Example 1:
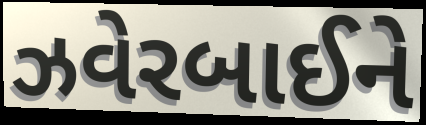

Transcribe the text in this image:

ઝવેરબાઈને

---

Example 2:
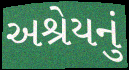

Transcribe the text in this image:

અશ્રેયનું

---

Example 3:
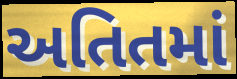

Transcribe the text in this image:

અતિતમાં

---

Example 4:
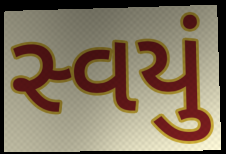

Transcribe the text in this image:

સ્વયું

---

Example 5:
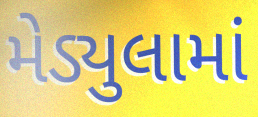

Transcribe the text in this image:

મેડ્યુલામાં